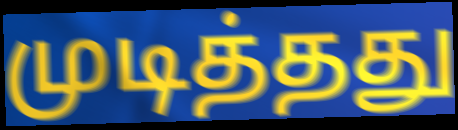
முடித்தது